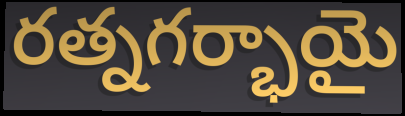
రత్నగర్భాయై